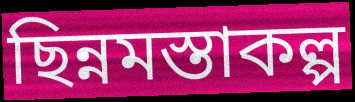
ছিন্নমস্তাকল্প